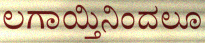
ಲಗಾಯ್ತಿನಿಂದಲೂ